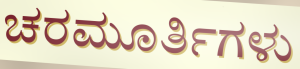
ಚರಮೂರ್ತಿಗಳು